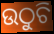
ଉଠୁଚି